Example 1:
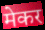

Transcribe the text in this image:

मेकर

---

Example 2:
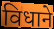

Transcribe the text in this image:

विधाने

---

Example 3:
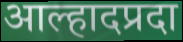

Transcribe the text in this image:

आल्हादप्रदा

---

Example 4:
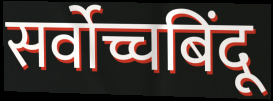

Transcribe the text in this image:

सर्वोच्चबिंदू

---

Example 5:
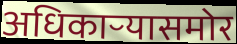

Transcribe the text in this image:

अधिकाऱ्यासमोर